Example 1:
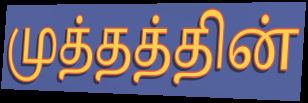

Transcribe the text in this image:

முத்தத்தின்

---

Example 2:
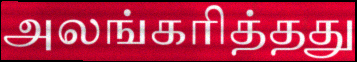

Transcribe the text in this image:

அலங்கரித்தது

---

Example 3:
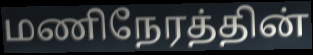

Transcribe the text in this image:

மணிநேரத்தின்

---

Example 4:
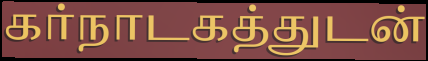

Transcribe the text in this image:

கர்நாடகத்துடன்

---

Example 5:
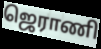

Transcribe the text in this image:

ஜெராணி